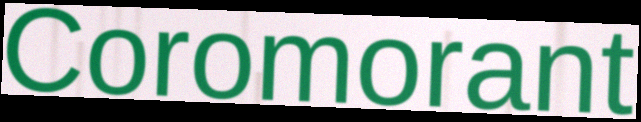
Coromorant